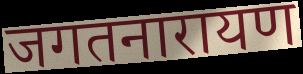
जगतनारायण